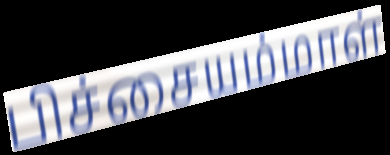
பிச்சையம்மாள்